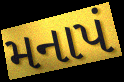
મનાપં